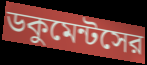
ডকুমেন্টসের